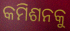
କମିଶନକୁ